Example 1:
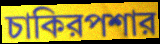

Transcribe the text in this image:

চাকিরপশার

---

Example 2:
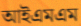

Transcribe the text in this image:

আইএমএম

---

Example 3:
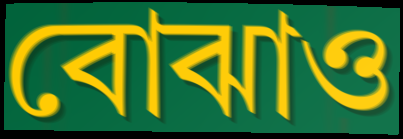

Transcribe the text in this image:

বোঝাও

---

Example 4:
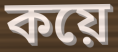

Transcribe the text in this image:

কয়ে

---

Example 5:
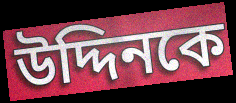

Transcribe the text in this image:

উদ্দিনকে